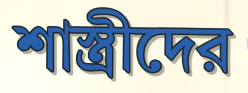
শাস্ত্রীদের